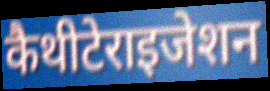
कैथीटेराइजेशन